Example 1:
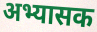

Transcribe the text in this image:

अभ्यासक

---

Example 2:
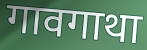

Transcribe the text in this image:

गावगाथा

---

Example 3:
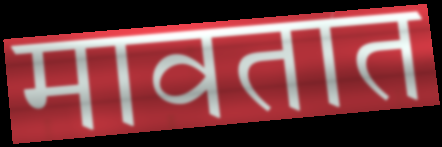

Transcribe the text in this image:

मावतात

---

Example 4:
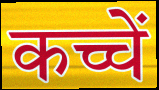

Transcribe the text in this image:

कच्चें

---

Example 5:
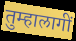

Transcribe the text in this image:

तुम्हालागीं